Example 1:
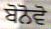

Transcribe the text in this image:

ਬੋਨੋਵੋ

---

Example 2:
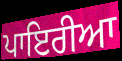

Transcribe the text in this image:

ਪਾਇਰੀਆ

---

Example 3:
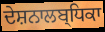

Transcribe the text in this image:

ਦੇਸ਼ਨਾਲਬ੍ਧਿਕਾ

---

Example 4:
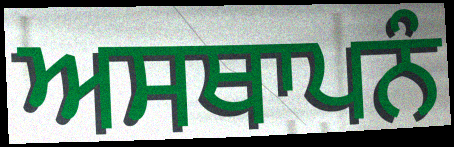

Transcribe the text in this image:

ਅਸਥਾਪਨੰ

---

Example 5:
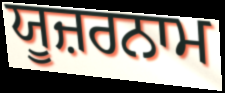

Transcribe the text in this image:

ਯੂਜ਼ਰਨਾਮ